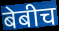
बेबीच